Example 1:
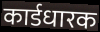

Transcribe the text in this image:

कार्डधारक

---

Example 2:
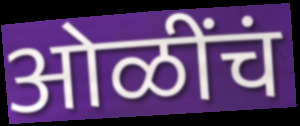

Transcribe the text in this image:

ओळींचं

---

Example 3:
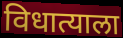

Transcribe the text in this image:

विधात्याला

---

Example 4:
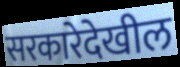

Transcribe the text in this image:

सरकारेदेखील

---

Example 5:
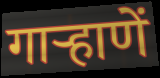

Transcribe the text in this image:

गार्‍हाणें